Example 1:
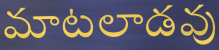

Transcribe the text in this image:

మాటలాడవు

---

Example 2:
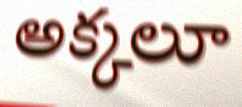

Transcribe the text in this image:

అక్కలూ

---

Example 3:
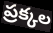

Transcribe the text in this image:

ప్రక్కల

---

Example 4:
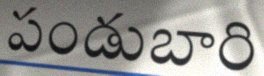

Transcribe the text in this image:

పండుబారి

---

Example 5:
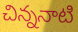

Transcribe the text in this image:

చిన్ననాటి